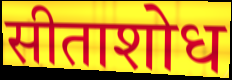
सीताशोध